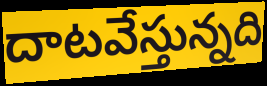
దాటవేస్తున్నది